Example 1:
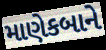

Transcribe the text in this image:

માણેકબાને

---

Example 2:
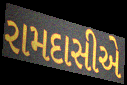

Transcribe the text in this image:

રામદાસીએ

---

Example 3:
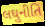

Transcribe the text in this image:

લઘુનીતિ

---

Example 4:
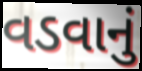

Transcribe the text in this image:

વડવાનું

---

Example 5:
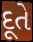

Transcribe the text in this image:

દૂતે